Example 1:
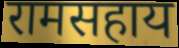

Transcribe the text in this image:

रामसहाय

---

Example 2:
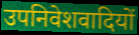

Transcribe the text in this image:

उपनिवेशवादियों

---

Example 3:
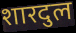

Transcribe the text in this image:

शारदुल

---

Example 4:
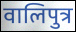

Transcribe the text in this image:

वालिपुत्र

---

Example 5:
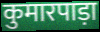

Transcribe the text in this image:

कुमारपाड़ा